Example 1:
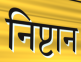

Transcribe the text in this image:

निप्टान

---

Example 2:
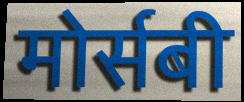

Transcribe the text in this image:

मोर्सबी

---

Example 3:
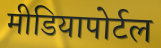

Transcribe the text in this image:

मीडियापोर्टल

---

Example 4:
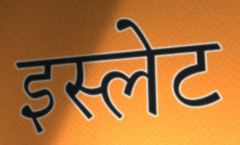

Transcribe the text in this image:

इस्लेट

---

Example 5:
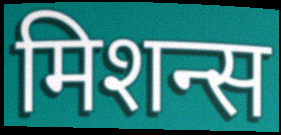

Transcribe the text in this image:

मिशन्स